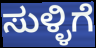
ಸುಳ್ಳಿಗೆ